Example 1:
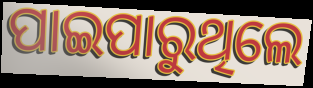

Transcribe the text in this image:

ପାଇପାରୁଥିଲେ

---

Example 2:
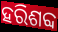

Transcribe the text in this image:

ହରିଶବ୍ଦ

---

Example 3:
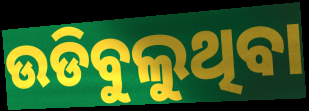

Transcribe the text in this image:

ଉଡିବୁଲୁଥିବା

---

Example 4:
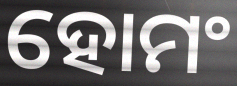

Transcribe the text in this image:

ହୋମଂ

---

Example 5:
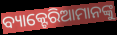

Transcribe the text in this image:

ବ୍ୟାକ୍ଟେରିଆମାନଙ୍କୁ